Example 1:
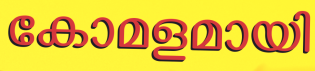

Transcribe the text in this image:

കോമളമായി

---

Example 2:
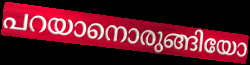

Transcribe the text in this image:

പറയാനൊരുങ്ങിയോ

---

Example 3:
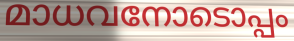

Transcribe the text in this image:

മാധവനോടൊപ്പം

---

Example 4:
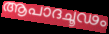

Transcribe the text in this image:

ആപാദചൂഢം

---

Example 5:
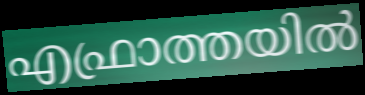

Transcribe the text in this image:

എഫ്രാത്തയിൽ